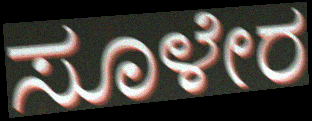
ಸೂಳೇರ